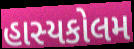
હાસ્યકોલમ